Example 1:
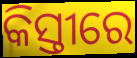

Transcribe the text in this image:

କିସ୍ତୀରେ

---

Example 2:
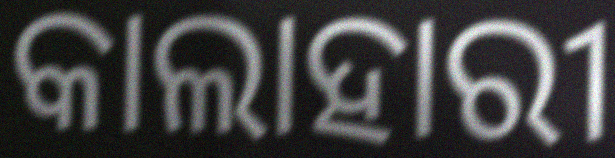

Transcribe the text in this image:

କାଲାହାରୀ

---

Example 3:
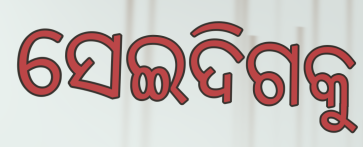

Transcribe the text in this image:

ସେଇଦିଗକୁ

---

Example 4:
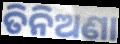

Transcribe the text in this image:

ତିନିଅଣା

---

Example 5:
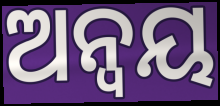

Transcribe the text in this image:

ଅନ୍ଵୟ